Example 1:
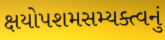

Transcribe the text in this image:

ક્ષયોપશમસમ્યક્ત્વનું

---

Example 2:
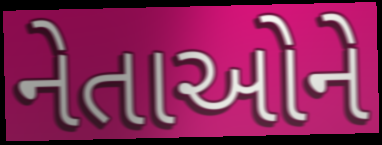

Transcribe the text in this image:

નેતાઓને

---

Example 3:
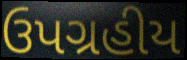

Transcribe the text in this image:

ઉપગ્રહીય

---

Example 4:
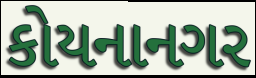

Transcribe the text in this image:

કોયનાનગર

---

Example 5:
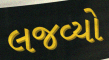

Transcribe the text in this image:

લજવ્યો